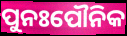
ପୁନଃପୌନିକ